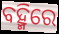
ବହ୍ମିରେ